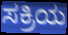
ಸಕ್ರಿಯ